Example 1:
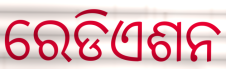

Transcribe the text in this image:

ରେଡିଏଶନ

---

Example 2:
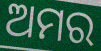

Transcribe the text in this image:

ଅମର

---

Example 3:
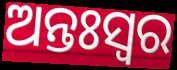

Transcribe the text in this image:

ଅନ୍ତଃସ୍ଵର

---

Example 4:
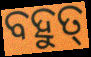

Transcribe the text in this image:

ବହୁତ୍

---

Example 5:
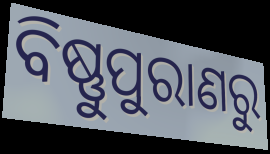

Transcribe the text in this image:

ବିଷ୍ଣୁପୁରାଣରୁ